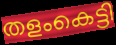
തളംകെട്ടി